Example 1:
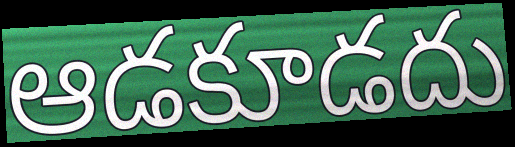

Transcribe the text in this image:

ఆడకూడదు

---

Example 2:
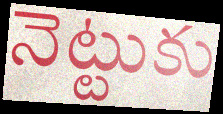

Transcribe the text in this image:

నెట్టుకు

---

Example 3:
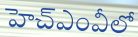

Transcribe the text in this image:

హెచ్ఎంవీలో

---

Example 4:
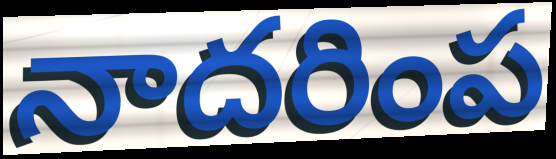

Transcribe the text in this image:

నాదరింప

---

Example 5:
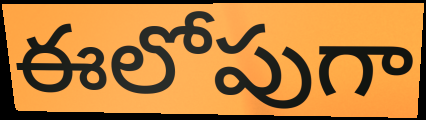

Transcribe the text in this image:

ఈలోపుగా